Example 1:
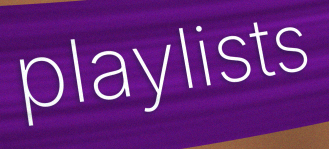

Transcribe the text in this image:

playlists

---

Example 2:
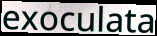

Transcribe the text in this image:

exoculata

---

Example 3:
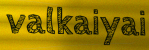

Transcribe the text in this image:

valkaiyai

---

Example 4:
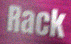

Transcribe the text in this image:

Rack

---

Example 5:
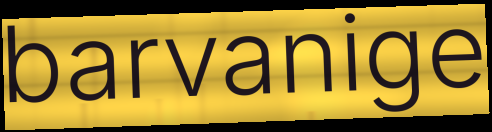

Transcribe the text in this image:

barvanige